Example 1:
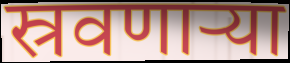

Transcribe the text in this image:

स्रवणाऱ्या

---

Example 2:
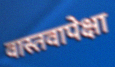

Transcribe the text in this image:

वास्तवापेक्षा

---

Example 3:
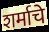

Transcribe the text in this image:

शर्माचे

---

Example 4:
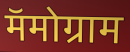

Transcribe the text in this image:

मॅमोग्राम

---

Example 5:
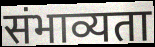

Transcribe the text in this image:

संभाव्यता